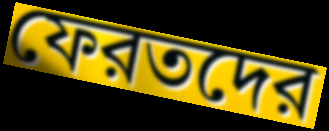
ফেরতদের